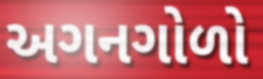
અગનગોળો